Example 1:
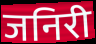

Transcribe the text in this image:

जनिरी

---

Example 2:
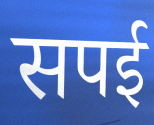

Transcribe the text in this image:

सपई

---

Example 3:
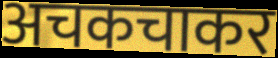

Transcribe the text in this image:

अचकचाकर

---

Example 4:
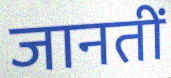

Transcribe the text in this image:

जानतीं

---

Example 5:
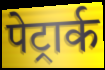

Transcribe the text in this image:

पेट्रार्क